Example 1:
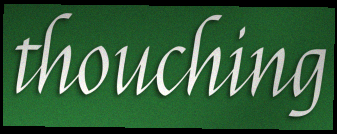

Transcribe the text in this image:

thouching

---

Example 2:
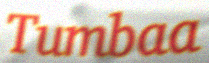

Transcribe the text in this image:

Tumbaa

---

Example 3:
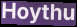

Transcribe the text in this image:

Hoythu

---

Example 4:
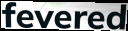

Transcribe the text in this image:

fevered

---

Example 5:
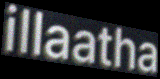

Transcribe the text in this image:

illaatha